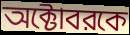
অক্টোবরকে